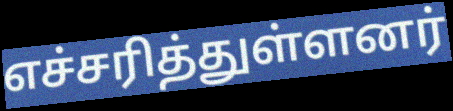
எச்சரித்துள்ளனர்